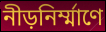
নীড়নির্ম্মাণে